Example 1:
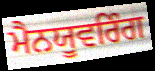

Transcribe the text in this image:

ਮੈਨਯੂਵਰਿੰਗ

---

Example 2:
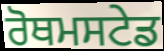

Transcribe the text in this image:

ਰੋਥਮਸਟੇਡ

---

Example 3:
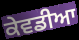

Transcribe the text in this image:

ਕੇਵਡੀਆ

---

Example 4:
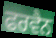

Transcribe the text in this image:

ਫਰਵੈਨ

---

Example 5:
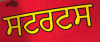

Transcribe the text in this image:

ਸਟਰਟਸ